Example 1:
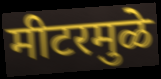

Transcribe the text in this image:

मीटरमुळे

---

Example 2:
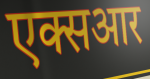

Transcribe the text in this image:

एक्सआर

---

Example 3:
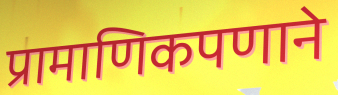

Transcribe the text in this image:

प्रामाणिकपणाने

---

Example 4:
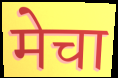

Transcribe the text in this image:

मेचा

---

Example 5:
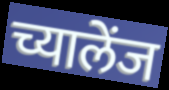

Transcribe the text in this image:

च्यालेंज